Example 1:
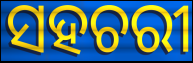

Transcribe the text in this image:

ସହଚରୀ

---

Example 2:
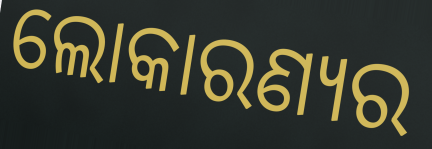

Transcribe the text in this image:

ଲୋକାରଣ୍ୟର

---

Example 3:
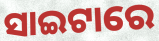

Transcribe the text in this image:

ସାଇଟାରେ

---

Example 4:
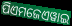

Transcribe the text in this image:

ପିଏମଜେଏୱାଇ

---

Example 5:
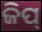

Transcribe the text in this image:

ଜିପ୍